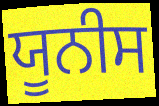
ਯੂਨੀਸ